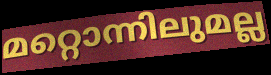
മറ്റൊന്നിലുമല്ല